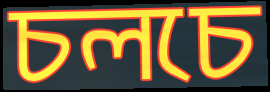
চলচে